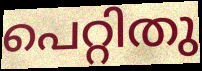
പെറ്റിതു